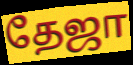
தேஜா